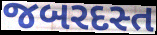
જબરદસ્ત